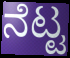
ನೆಟ್ಟ